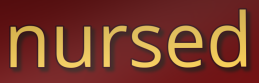
nursed